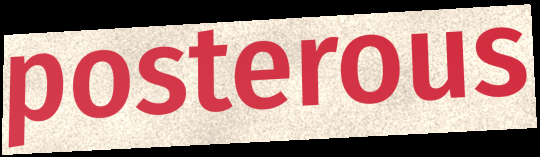
posterous